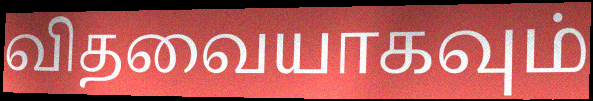
விதவையாகவும்